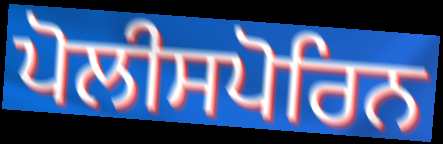
ਪੋਲੀਸਪੋਰਿਨ